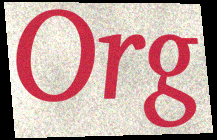
Org